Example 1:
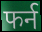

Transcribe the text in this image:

फर्न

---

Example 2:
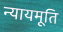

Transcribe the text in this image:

न्यायमूति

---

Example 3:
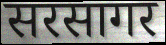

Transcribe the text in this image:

सरसागर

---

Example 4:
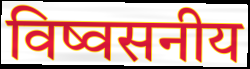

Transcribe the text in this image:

विष्वसनीय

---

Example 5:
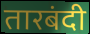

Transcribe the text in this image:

तारबंदी